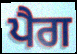
ਪੈਗ